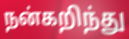
நன்கறிந்து